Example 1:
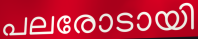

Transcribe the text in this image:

പലരോടായി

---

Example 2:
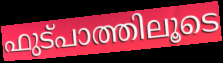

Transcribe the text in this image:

ഫുട്പാത്തിലൂടെ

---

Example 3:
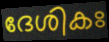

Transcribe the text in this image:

ദേശികഃ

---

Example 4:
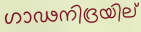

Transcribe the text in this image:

ഗാഢനിദ്രയില്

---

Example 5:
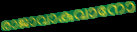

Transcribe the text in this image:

രാജാവാകുവാനോ